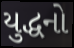
યુદ્ધનો